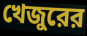
খেজুরের